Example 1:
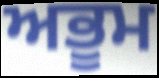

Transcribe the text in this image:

ਅਭੂਮ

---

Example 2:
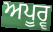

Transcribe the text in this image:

ਅਪੂਰ੍ਵ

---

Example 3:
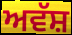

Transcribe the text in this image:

ਅਵੱਸ਼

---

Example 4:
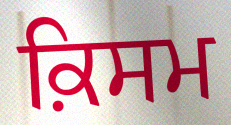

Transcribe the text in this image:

ਕ਼ਿਸਮ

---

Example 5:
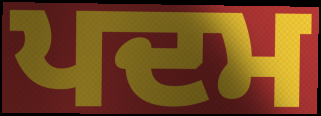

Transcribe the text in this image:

ਪਦਮ